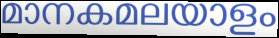
മാനകമലയാളം